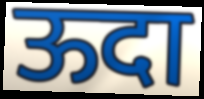
ऊदा